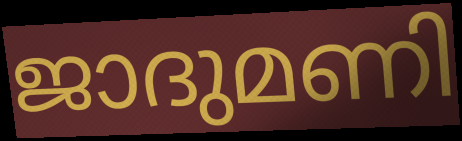
ജാദുമണി